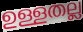
ഉള്ളതല്ല